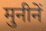
मुनीनें